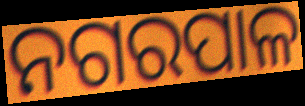
ନଗରପାଳ